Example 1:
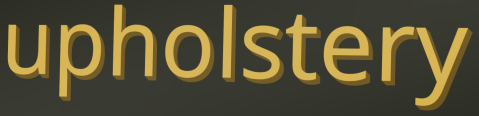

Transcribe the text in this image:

upholstery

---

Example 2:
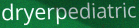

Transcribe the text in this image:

dryerpediatric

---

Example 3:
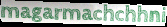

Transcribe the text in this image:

magarmachchhni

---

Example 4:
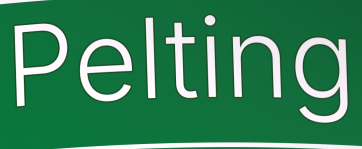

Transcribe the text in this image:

Pelting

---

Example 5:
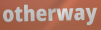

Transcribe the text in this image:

otherway